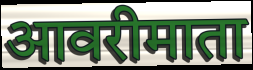
आवरीमाता